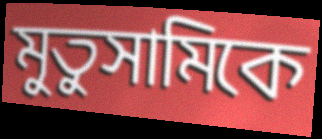
মুতুসামিকে